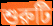
শুরুটি